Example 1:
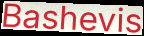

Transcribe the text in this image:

Bashevis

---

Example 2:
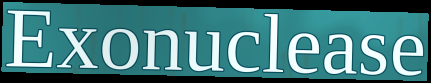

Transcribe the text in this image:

Exonuclease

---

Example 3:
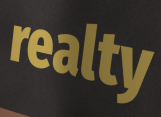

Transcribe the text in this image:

realty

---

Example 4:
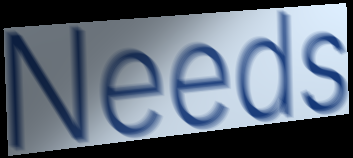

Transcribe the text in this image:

Needs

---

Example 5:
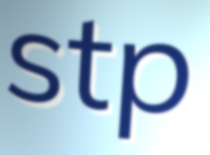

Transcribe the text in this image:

stp